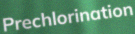
Prechlorination